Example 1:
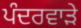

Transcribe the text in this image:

ਪੰਦਰਵਾੜੇ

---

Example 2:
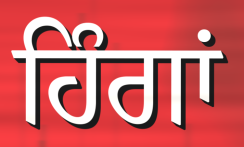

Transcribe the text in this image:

ਹਿੰਗਾਂ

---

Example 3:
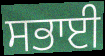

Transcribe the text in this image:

ਸਭਾਈ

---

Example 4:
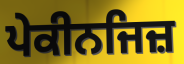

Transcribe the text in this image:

ਪੇਕੀਨਜਿਜ਼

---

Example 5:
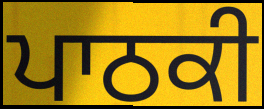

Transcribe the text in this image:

ਪਾਠਕੀ